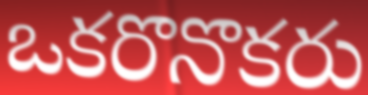
ఒకరొనొకరు